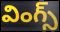
వింగ్స్